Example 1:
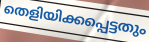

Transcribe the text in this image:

തെളിയിക്കപ്പെട്ടതും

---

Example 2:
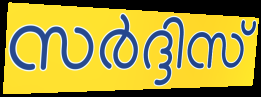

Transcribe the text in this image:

സർദ്ദിസ്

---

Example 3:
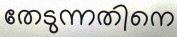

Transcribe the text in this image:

തേടുന്നതിനെ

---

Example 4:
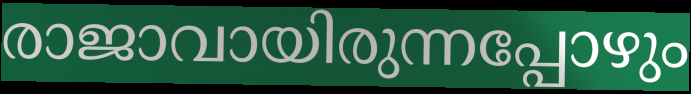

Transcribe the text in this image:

രാജാവായിരുന്നപ്പോഴും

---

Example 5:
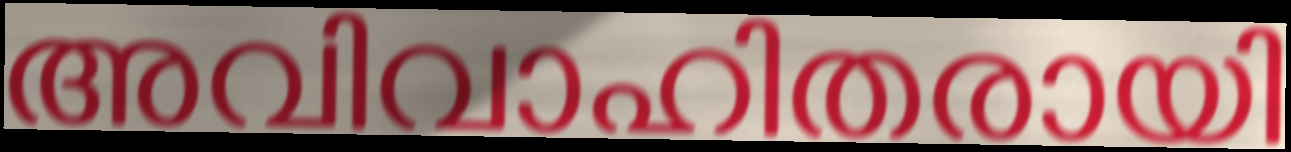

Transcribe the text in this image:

അവിവാഹിതരായി